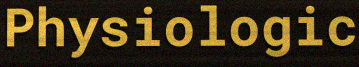
Physiologic